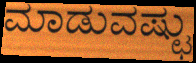
ಮಾಡುವಷ್ಟು